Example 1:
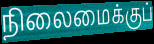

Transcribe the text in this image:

நிலைமைக்குப்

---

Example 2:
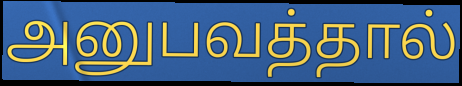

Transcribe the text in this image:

அனுபவத்தால்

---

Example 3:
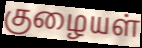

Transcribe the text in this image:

குழையள்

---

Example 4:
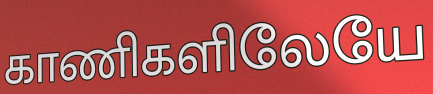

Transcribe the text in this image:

காணிகளிலேயே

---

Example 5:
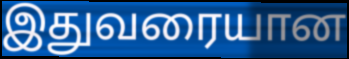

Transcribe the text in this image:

இதுவரையான